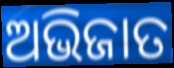
ଅଭିଜାତ